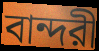
বান্দরী